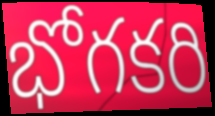
భోగకరి